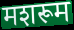
मशरूम